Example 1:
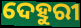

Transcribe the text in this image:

ଦେହୁରୀ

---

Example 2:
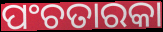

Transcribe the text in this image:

ପଂଚତାରକା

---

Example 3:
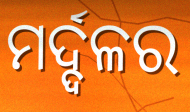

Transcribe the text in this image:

ମର୍ଦ୍ଦଳର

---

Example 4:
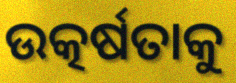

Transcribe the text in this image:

ଉତ୍କର୍ଷତାକୁ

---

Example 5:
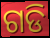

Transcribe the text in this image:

ଗଡି